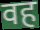
वह